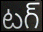
టగ్